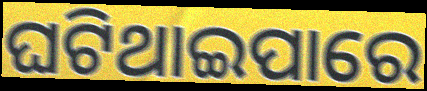
ଘଟିଥାଇପାରେ